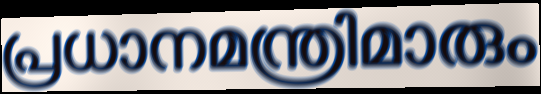
പ്രധാനമന്ത്രിമാരും